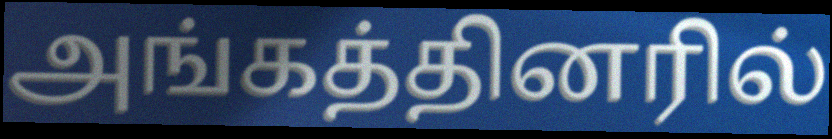
அங்கத்தினரில்